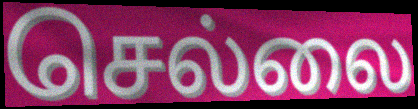
செல்லை